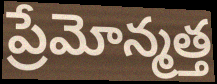
ప్రేమోన్మత్త